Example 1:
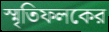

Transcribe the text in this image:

স্মৃতিফলকের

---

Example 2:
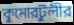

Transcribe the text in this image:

কুমোরটুলীর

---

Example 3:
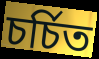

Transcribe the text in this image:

চর্চিত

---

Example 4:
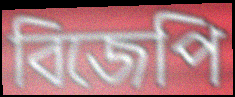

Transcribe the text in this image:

বিজেপি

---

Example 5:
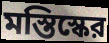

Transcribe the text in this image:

মস্তিস্কের